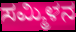
ಸಮ್ಮಿಳನ